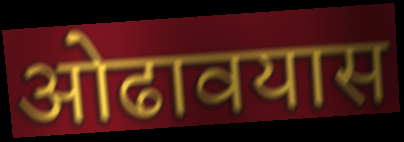
ओढावयास